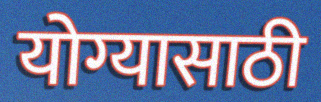
योग्यासाठी